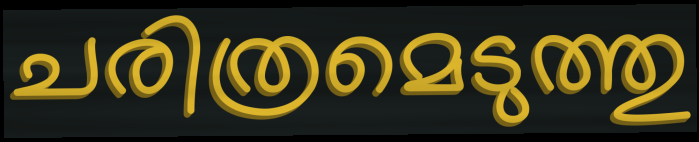
ചരിത്രമെടുത്തു